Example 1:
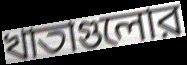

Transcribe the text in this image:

খাতাগুলোর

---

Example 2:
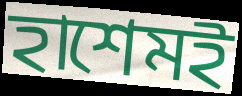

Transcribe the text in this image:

হাশেমই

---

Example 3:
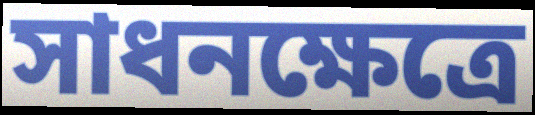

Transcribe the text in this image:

সাধনক্ষেত্রে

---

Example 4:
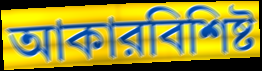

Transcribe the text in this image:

আকারবিশিষ্ট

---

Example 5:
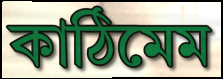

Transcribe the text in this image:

কাঠিমেম